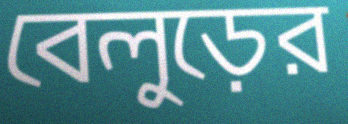
বেলুড়ের